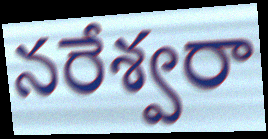
నరేశ్వరా